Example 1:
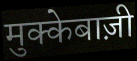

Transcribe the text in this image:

मुक्केबाज़ी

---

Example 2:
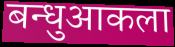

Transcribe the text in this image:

बन्धुआकला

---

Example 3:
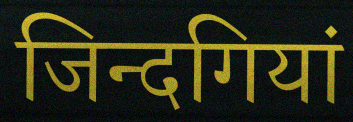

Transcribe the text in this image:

जिन्दगियां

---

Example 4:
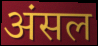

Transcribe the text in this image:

अंसल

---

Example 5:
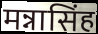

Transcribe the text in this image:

मन्नासिंह